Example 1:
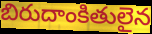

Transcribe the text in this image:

బిరుదాంకితులైన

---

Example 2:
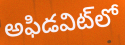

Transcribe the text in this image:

అఫిడవిట్‌లో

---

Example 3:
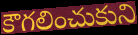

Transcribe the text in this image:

కౌగలించుకుని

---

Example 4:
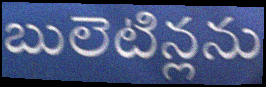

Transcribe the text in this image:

బులెటిన్లను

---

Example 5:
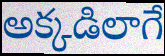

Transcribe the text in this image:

అక్కడిలాగే